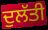
ਦੁਲੱਤੀ